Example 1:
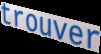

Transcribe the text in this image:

trouver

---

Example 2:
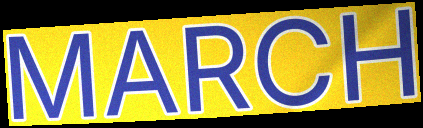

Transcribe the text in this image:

MARCH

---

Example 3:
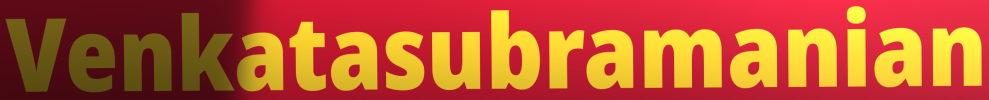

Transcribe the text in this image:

Venkatasubramanian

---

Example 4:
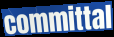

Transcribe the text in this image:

committal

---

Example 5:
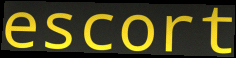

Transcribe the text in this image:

escort